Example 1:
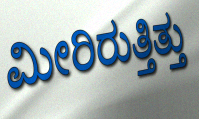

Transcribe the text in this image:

ಮೀರಿರುತ್ತಿತ್ತು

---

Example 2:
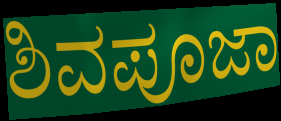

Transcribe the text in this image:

ಶಿವಪೂಜಾ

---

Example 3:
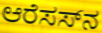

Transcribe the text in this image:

ಆರೆಸಸ್‌ನ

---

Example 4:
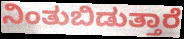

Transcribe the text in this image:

ನಿಂತುಬಿಡುತ್ತಾರೆ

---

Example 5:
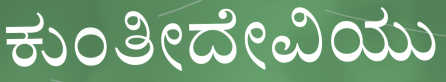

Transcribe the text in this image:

ಕುಂತೀದೇವಿಯು